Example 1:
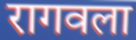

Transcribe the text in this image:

रागवला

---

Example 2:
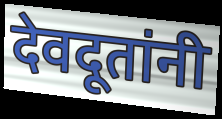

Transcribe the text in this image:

देवदूतांनी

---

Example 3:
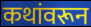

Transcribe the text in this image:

कथांवरून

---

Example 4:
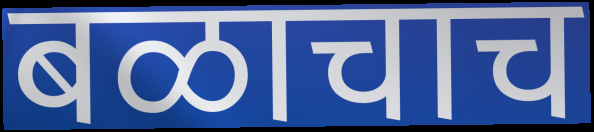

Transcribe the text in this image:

बळाचाच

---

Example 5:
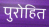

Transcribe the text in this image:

पुरोहित